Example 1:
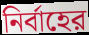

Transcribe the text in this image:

নির্বাহের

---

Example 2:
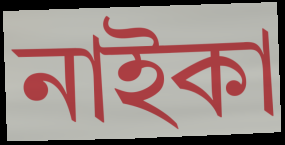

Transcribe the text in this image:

নাইকা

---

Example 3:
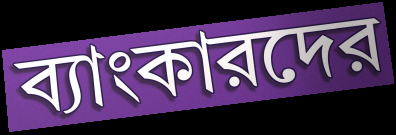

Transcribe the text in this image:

ব্যাংকারদের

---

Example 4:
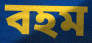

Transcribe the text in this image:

বহম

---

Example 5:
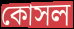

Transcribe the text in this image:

কোসল